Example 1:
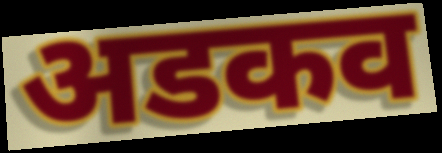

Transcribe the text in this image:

अडकव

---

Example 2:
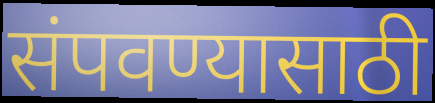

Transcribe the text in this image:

संपवण्यासाठी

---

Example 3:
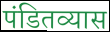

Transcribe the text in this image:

पंडितव्यास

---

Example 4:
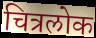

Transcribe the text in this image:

चित्रलोक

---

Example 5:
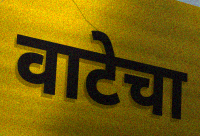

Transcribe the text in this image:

वाटेचा